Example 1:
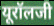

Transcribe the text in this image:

यूरॉलजी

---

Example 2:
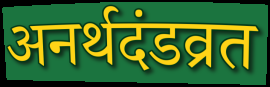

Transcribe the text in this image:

अनर्थदंडव्रत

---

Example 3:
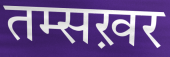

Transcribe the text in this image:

तम्सख़र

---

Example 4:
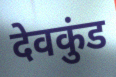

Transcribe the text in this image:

देवकुंड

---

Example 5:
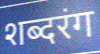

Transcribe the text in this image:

शब्दरंग